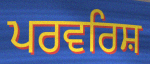
ਪਰਵਰਿਸ਼